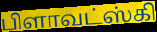
பிளாவட்ஸ்கி